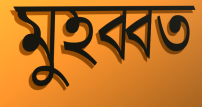
মুহব্বত